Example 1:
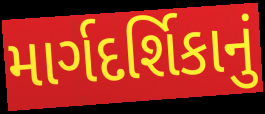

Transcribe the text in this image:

માર્ગદર્શિકાનું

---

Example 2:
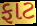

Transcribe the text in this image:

ફાટ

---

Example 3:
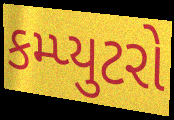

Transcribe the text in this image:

કમ્પ્યુટરો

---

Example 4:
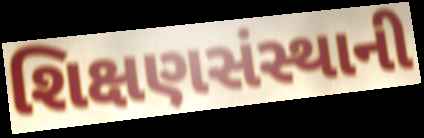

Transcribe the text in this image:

શિક્ષણસંસ્થાની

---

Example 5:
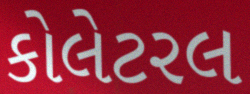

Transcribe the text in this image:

કોલેટરલ